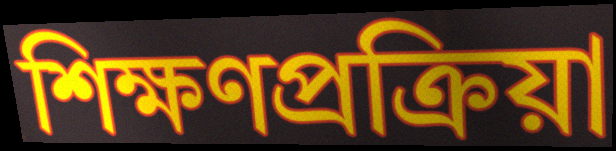
শিক্ষণপ্রক্রিয়া